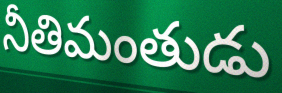
నీతిమంతుడు